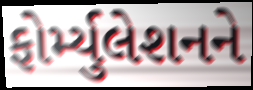
ફોર્મ્યુલેશનને